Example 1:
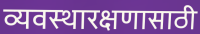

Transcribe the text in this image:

व्यवस्थारक्षणासाठी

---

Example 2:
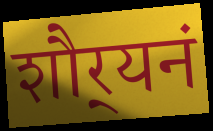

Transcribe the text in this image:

शौर्यनं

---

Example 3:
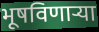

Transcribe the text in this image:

भूषविणाऱ्या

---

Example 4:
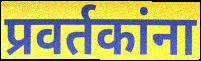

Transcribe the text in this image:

प्रवर्तकांना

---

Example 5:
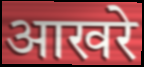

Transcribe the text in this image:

आखरे